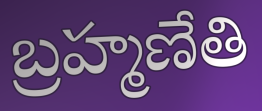
బ్రహ్మణేతి